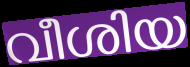
വീശിയ